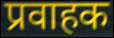
प्रवाहक